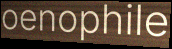
oenophile